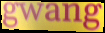
gwang